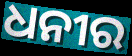
ଧନୀର